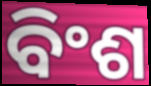
ବିଂଶ